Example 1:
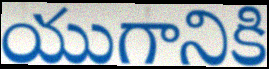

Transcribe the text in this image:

యుగానికి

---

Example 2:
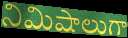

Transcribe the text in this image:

నిమిషాలుగా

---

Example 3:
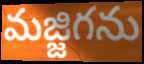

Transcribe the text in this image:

మజ్జిగను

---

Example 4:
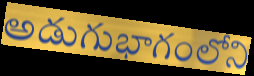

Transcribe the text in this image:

అడుగుభాగంలోని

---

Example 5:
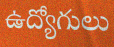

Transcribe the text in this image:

ఉద్యోగులు